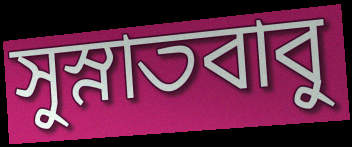
সুস্নাতবাবু